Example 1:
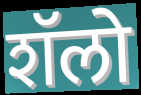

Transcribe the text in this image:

शॅलो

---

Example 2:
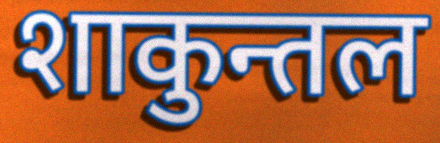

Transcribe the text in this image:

शाकुन्तल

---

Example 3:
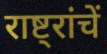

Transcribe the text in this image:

राष्ट्रांचें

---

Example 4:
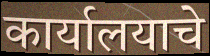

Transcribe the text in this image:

कार्यालयाचे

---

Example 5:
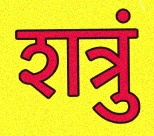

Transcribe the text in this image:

शत्रुं